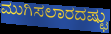
ಮುಗಿಸಲಾರದಷ್ಟು